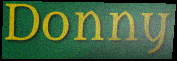
Donny